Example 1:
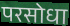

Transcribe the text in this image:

परसोधा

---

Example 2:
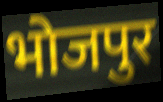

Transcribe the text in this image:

भोजपुर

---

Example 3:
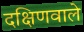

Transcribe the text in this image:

दक्षिणवाले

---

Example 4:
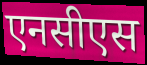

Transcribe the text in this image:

एनसीएस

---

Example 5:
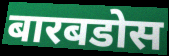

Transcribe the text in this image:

बारबडोस